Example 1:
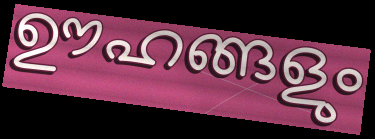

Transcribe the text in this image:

ഊഹങ്ങളും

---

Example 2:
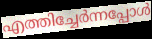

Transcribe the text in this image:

എത്തിച്ചേർന്നപ്പോൾ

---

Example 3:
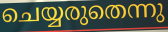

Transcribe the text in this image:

ചെയ്യരുതെന്നു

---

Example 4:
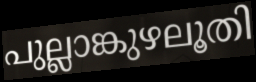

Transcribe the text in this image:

പുല്ലാങ്കുഴലൂതി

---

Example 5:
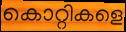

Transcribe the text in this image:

കൊറ്റികളെ